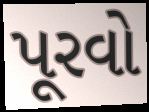
પૂરવો